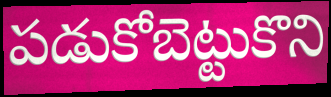
పడుకోబెట్టుకొని